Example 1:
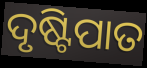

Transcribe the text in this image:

ଦୃଷ୍ଟିପାତ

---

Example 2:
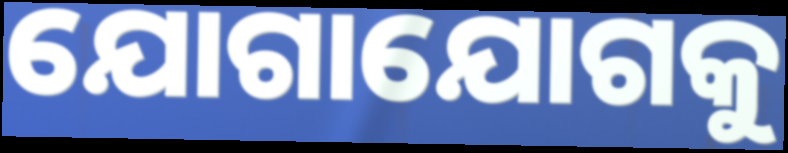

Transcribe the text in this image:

ଯୋଗାଯୋଗକୁ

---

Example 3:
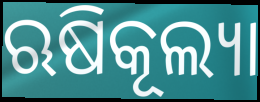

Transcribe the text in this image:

ଋଷିକୂଲ୍ୟା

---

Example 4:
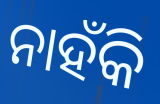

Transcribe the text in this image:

ନାହଁକି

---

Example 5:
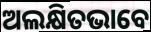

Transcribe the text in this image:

ଅଲକ୍ଷିତଭାବେ